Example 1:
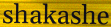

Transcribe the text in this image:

shakashe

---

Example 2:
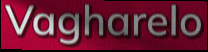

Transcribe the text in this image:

Vagharelo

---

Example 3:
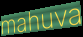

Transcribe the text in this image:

mahuva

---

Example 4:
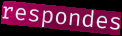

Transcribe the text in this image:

respondes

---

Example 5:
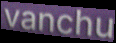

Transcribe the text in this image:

vanchu